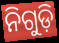
ନିଗୁଡ଼ି